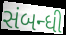
સંબન્ધી